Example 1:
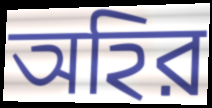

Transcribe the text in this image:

অহির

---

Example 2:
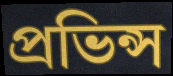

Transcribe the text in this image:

প্রভিন্স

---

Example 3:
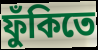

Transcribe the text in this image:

ফুঁকিতে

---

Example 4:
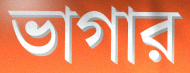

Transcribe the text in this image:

ভাগার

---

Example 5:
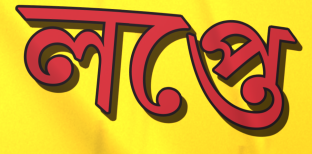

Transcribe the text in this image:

লপ্তে